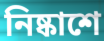
নিষ্কাশে